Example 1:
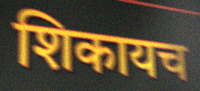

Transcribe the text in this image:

शिकायच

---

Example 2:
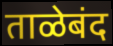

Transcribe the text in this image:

ताळेबंद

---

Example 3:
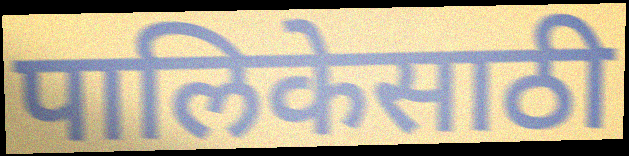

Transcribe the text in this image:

पालिकेसाठी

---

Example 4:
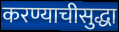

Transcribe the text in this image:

करण्याचीसुद्धा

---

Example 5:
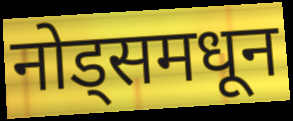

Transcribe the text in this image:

नोड्समधून